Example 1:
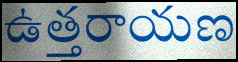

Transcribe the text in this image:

ఉత్తరాయణ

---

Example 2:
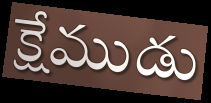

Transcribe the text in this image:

క్షేముడు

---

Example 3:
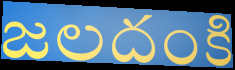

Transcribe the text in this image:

జలదంకి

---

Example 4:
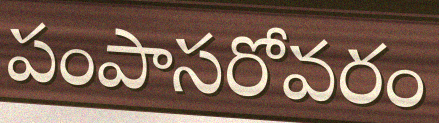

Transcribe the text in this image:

పంపాసరోవరం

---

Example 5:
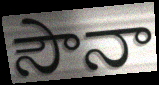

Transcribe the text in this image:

సౌనా